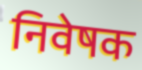
निवेषक